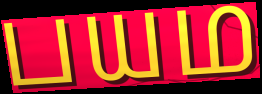
பயம